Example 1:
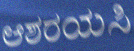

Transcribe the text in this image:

ಆಶರಯಸಿ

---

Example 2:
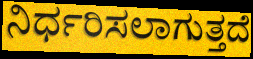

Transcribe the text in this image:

ನಿರ್ಧರಿಸಲಾಗುತ್ತದೆ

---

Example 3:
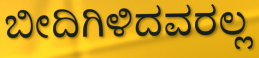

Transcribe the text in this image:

ಬೀದಿಗಿಳಿದವರಲ್ಲ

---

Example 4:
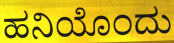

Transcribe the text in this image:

ಹನಿಯೊಂದು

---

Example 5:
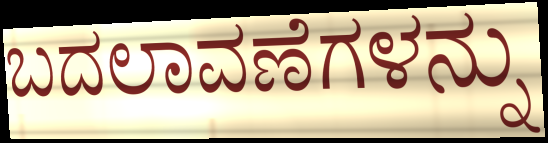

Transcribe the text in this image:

ಬದಲಾವಣೆಗಳನ್ನು